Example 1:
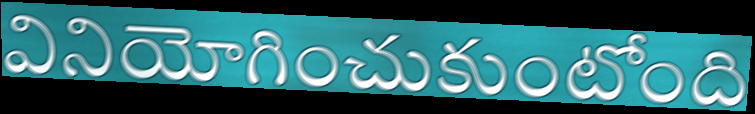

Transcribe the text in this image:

వినియోగించుకుంటోంది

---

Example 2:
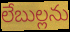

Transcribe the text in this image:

లేబుల్లను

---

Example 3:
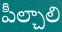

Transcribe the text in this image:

పీల్చాలి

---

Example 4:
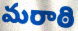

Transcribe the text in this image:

మరాఠి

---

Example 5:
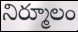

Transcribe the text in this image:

నిర్మూలం